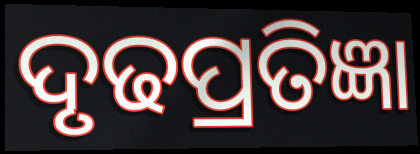
ଦୃଢପ୍ରତିଜ୍ଞା